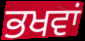
ਭਖਵਾਂ